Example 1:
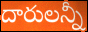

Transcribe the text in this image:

దారులన్నీ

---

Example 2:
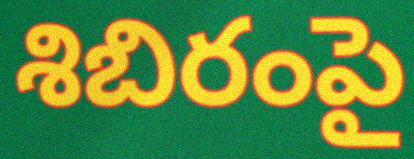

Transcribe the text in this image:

శిబిరంపై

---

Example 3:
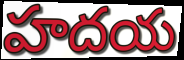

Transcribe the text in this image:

హదయ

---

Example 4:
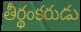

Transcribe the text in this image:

తీర్థంకరుడు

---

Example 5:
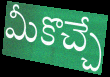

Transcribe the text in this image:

మీకొచ్చే